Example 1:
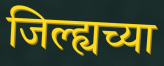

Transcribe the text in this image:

जिल्ह्यच्या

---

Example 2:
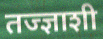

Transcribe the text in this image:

तज्ज्ञाशी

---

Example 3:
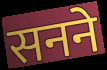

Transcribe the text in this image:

सनने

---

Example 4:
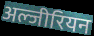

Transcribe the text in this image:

अल्जीरियन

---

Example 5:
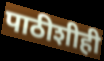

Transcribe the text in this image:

पाठीशीही